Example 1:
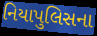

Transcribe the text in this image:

નિયાપુલિસના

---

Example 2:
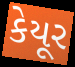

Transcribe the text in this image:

કેયૂર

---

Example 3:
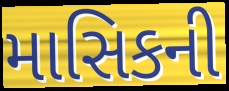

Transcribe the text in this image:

માસિકની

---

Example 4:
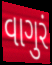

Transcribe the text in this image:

વાગુરં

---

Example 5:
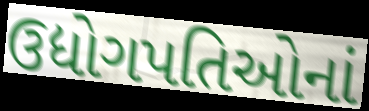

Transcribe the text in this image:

ઉદ્યોગપતિઓનાં